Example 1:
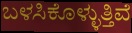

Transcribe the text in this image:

ಬಳಸಿಕೊಳ್ಳುತ್ತಿವೆ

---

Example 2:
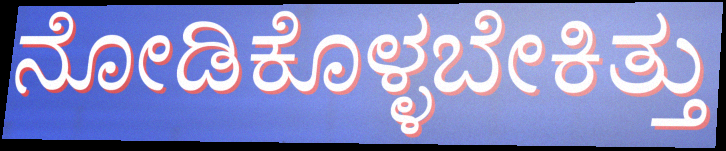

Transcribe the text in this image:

ನೋಡಿಕೊಳ್ಳಬೇಕಿತ್ತು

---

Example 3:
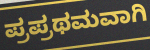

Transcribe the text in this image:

ಪ್ರಪ್ರಥಮವಾಗಿ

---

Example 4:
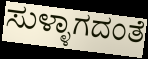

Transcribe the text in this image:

ಸುಳ್ಳಾಗದಂತೆ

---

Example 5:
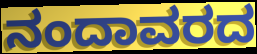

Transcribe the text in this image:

ನಂದಾವರದ